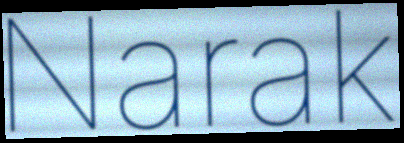
Narak